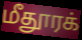
மீதூரக்